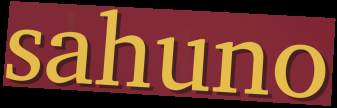
sahuno